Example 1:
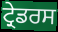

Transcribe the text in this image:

ਟ੍ਰੇਡਰਸ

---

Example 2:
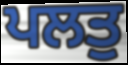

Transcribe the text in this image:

ਪਲਤੁ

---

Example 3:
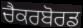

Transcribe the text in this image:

ਚੈਕਰਬੋਰਡ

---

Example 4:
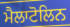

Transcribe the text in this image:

ਮੈਲਾਟੋਲਿਨ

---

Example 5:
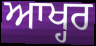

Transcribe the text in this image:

ਆਖ੍ਹਰ